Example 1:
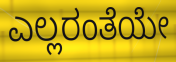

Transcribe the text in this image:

ಎಲ್ಲರಂತೆಯೇ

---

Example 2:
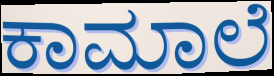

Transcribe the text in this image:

ಕಾಮಾಲೆ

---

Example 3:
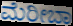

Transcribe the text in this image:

ಮೆರೀಬಾ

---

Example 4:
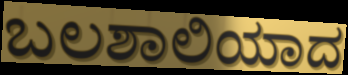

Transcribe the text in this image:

ಬಲಶಾಲಿಯಾದ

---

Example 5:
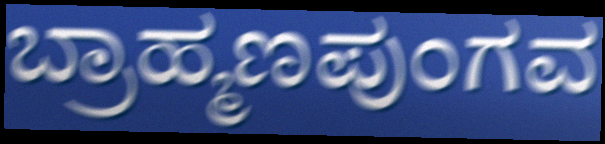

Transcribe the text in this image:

ಬ್ರಾಹ್ಮಣಪುಂಗವ